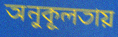
অনুকূলতায়